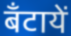
बँटायें